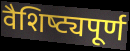
वैशिष्ट्यपूर्ण